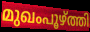
മുഖംപൂഴ്ത്തി